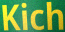
Kich